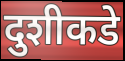
दुशीकडे